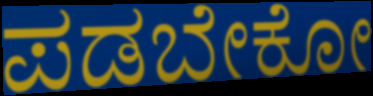
ಪಡಬೇಕೋ